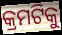
କ୍ରମଟିକୁ